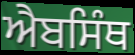
ਐਬਸਿੰਥ